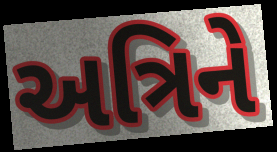
અત્રિને